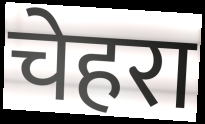
चेहरा